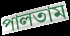
পালতাম